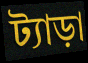
ট্যাড়া